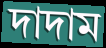
দাদাম